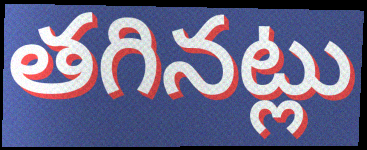
తగినట్లు